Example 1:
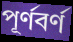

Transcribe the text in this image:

পূর্ণবর্ণ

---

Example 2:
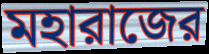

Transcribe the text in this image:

মহারাজের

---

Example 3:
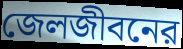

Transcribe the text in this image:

জেলজীবনের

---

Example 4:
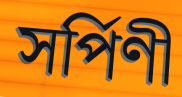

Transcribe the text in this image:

সর্পিণী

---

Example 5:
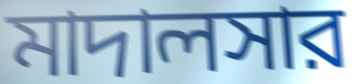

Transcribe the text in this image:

মাদালসার